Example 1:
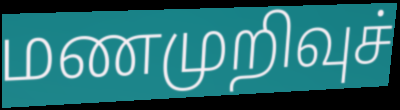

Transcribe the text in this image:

மணமுறிவுச்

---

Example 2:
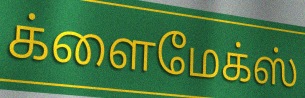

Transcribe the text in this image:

க்ளைமேக்ஸ்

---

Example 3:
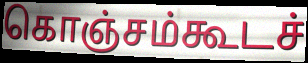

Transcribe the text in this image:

கொஞ்சம்கூடச்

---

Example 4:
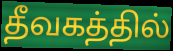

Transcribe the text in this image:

தீவகத்தில்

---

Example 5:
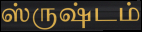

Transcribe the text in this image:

ஸ்ருஷ்டம்